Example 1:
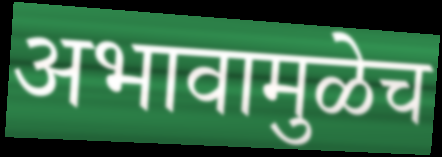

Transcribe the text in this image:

अभावामुळेच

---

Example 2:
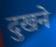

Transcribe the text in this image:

दुखने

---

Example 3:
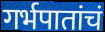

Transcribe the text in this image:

गर्भपातांचं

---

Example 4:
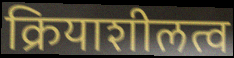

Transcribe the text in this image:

क्रियाशीलत्व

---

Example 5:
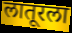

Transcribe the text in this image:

लातूरला